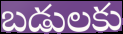
బడులకు